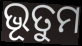
ଭୂତୁମ